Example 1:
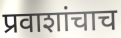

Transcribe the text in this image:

प्रवाशांचाच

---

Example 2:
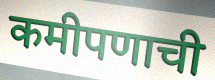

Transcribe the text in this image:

कमीपणाची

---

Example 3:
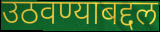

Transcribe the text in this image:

उठवण्याबद्दल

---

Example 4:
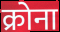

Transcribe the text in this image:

क्रोना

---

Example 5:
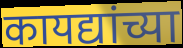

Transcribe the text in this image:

कायद्यांच्या